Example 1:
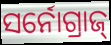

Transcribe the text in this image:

ସର୍ନୋଗ୍ରାଜ୍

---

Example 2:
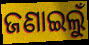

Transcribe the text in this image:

ଜଣାଇଲୁଁ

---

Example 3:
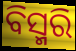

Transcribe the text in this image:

ବିସ୍ମରି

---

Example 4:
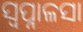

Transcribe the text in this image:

ସ୍ୱପ୍ନାଳସା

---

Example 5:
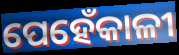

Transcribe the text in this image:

ପେହେଁକାଳୀ